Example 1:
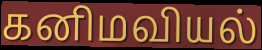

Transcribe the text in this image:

கனிமவியல்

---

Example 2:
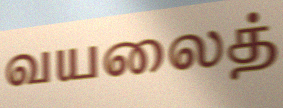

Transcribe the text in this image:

வயலைத்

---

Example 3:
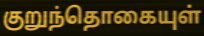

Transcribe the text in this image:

குறுந்தொகையுள்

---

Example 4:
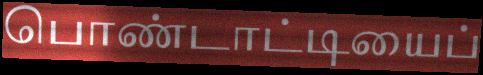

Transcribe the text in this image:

பொண்டாட்டியைப்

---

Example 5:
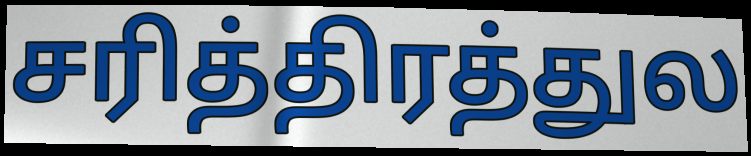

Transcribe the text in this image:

சரித்திரத்துல